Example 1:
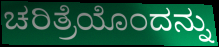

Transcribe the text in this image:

ಚರಿತ್ರೆಯೊಂದನ್ನು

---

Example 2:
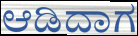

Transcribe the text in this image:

ಆಡಿದಾಗ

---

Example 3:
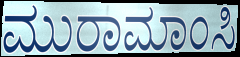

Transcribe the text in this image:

ಮುರಾಮಾಂಸಿ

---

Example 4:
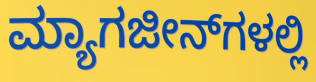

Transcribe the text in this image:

ಮ್ಯಾಗಜೀನ್‌ಗಳಲ್ಲಿ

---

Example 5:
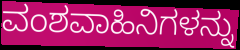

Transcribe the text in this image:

ವಂಶವಾಹಿನಿಗಳನ್ನು